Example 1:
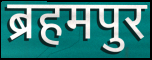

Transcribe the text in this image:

ब्रहमपुर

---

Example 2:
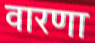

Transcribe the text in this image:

वारणा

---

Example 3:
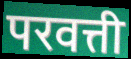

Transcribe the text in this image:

परवत्ती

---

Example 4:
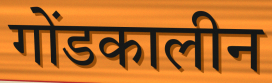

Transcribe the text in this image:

गोंडकालीन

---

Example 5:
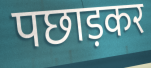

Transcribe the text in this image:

पछाड़कर